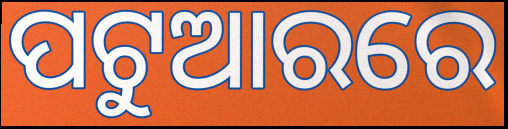
ପଟୁଆରରେ